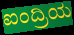
ಐಂದ್ರಿಯ